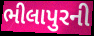
ભીલાપુરની